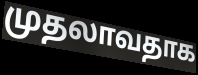
முதலாவதாக